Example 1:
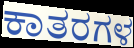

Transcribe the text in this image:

ಕಾತರಗಳ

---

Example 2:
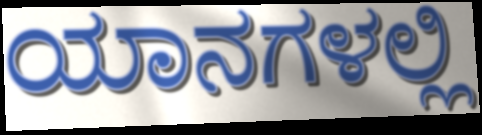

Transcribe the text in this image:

ಯಾನಗಳಲ್ಲಿ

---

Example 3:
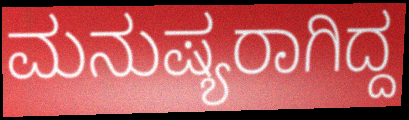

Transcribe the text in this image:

ಮನುಷ್ಯರಾಗಿದ್ದ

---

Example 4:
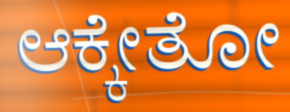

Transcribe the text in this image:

ಆಕ್ಕೇತೋ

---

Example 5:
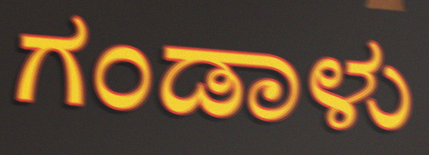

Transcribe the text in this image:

ಗಂಡಾಳು